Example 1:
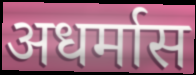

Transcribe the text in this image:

अधर्मास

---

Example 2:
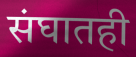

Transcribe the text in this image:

संघातही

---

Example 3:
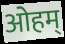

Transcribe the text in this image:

ओहम्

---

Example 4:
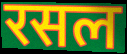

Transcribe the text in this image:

रसल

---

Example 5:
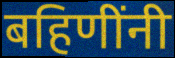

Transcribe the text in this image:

बहिणींनी